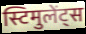
स्टिमुलेंट्स